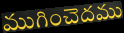
ముగించెదము